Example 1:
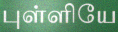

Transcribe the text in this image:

புள்ளியே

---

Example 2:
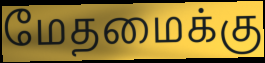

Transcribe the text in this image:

மேதமைக்கு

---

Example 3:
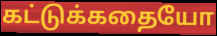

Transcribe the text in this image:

கட்டுக்கதையோ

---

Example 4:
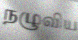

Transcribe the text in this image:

நழுவிய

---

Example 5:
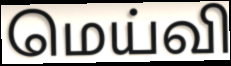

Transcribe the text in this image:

மெய்வி